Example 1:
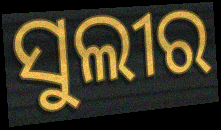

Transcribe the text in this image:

ସୁଲୀର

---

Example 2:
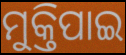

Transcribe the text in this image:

ମୁକ୍ତିପାଇ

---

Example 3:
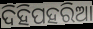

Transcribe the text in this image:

ଦିହିପହରିଆ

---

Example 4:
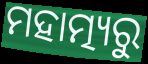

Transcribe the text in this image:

ମହାତ୍ମ୍ୟରୁ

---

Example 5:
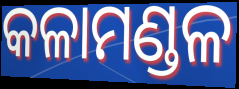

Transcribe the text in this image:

କଳାମଣ୍ଡଳ